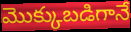
మొక్కుబడిగానే